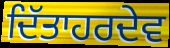
ਦਿੱਤਾਹਰਦੇਵ